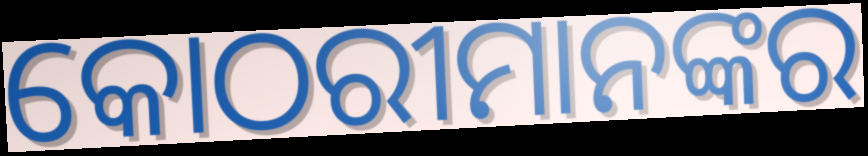
କୋଠରୀମାନଙ୍କର